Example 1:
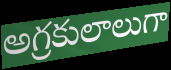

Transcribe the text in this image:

అగ్రకులాలుగా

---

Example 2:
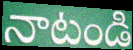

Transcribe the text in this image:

నాటండి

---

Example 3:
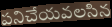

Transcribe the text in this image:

పనిచేయవలసిన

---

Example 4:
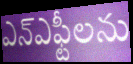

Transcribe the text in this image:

ఎన్ఎఫ్టీలను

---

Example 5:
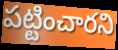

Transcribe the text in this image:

పట్టించారని